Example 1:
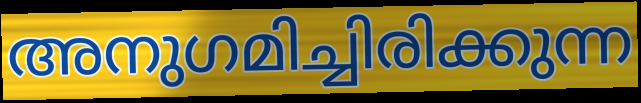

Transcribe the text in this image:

അനുഗമിച്ചിരിക്കുന്ന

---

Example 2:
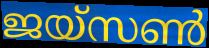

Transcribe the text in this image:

ജയ്സൺ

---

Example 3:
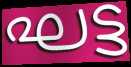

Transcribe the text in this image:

ഘട്ട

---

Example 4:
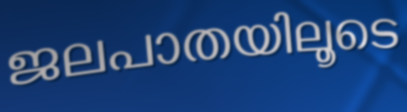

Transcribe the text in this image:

ജലപാതയിലൂടെ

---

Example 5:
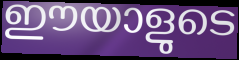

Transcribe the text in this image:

ഈയാളുടെ